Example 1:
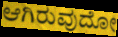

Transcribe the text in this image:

ಆಗಿರುವುದೋ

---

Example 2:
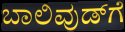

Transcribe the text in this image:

ಬಾಲಿವುಡ್‌ಗೆ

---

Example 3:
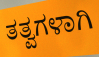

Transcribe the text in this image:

ತತ್ವಗಳಾಗಿ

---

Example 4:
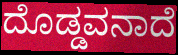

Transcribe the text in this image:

ದೊಡ್ಡವನಾದೆ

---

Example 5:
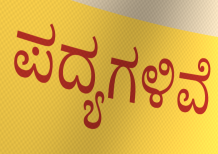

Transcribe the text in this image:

ಪದ್ಯಗಳಿವೆ